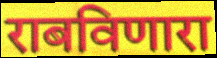
राबविणारा